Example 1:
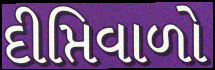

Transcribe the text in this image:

દીપ્તિવાળો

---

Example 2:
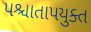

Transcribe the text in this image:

પશ્ચાતાપયુક્ત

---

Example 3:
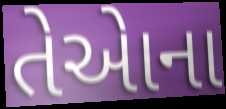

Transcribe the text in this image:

તેએાના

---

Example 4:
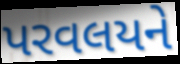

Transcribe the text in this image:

પરવલયને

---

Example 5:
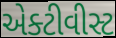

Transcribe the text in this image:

એક્ટીવીસ્ટ